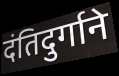
दंतिदुर्गाने